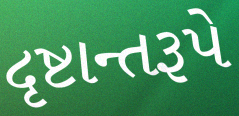
દૃષ્ટાન્તરૂપે